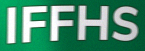
IFFHS